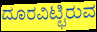
ದೂರವಿಟ್ಟಿರುವ